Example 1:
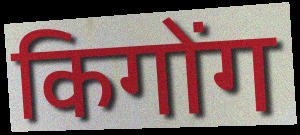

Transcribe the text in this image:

किगोंग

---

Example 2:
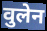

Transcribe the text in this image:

वुलेन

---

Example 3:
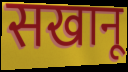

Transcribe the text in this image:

सखानू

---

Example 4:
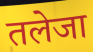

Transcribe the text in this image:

तलेजा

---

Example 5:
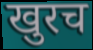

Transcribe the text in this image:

खुरच